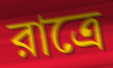
রাত্রে